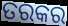
ତରକର